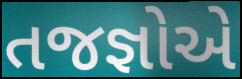
તજજ્ઞોએ